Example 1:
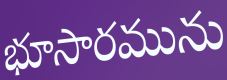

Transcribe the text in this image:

భూసారమును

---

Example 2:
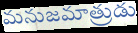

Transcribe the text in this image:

మనుజమాత్రుడు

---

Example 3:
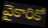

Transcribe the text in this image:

వైకారికో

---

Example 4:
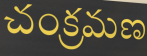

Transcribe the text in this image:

చంక్రమణ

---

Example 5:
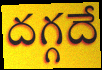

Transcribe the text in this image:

దగ్గదే